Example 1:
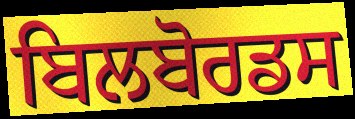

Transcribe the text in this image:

ਬਿਲਬੋਰਡਸ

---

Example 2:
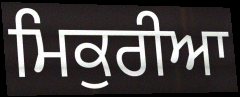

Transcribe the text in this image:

ਮਿਕੁਰੀਆ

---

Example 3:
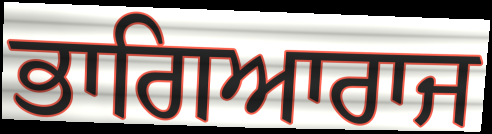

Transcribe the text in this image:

ਭਾਗਿਆਰਾਜ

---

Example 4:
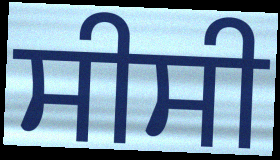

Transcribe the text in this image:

ਸੀਸੀ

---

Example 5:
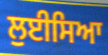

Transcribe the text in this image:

ਲੁਈਸਿਆ